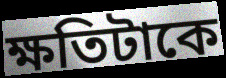
ক্ষতিটাকে